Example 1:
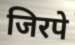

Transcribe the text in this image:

जिरपे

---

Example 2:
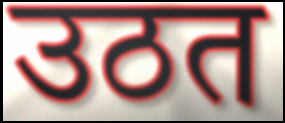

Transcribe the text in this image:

उठत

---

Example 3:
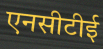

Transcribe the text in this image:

एनसीटीई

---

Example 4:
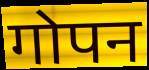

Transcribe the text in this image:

गोपन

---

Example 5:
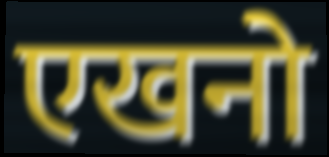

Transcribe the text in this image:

एखनो